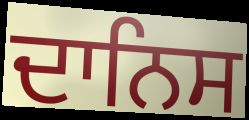
ਦਾਨਿਸ